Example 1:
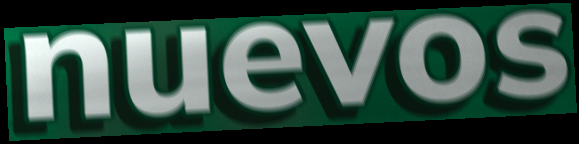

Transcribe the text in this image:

nuevos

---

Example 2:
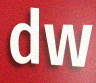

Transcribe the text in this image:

dw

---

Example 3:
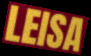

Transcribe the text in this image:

LEISA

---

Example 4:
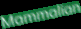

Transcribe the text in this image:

Mammalian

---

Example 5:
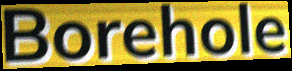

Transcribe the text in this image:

Borehole